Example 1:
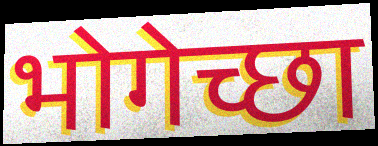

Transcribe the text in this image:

भोगेच्छा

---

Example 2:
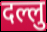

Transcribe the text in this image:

दल्लु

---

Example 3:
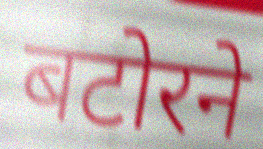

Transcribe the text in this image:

बटोरने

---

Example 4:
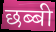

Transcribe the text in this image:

छब्बी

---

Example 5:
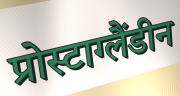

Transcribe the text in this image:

प्रोस्टाग्लैंडीन